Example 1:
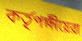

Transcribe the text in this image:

কর্তৃপক্ষীয়েরা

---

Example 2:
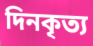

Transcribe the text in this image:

দিনকৃত্য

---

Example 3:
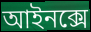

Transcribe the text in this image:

আইনক্সে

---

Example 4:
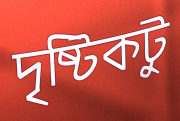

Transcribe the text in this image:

দৃষ্টিকটু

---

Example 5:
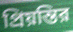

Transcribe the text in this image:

প্রিয়ন্তির